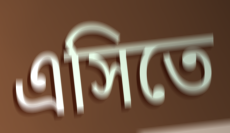
এসিতে